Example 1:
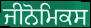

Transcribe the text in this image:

ਜੀਨੋਮਿਕਸ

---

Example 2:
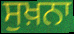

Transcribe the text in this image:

ਸੁਖ਼ਨਾ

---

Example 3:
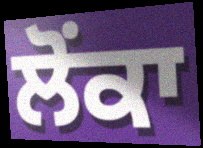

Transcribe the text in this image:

ਲੋਂਕਾ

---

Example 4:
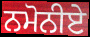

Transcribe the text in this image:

ਨਮੋਨੀਏ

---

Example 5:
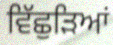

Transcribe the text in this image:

ਵਿੱਛੁੜਿਆਂ